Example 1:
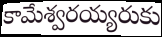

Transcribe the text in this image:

కామేశ్వరయ్యరుకు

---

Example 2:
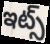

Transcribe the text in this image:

ఇట్స్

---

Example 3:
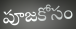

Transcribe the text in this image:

పూజకోసం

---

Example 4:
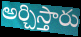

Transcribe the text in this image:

అర్చిస్తారు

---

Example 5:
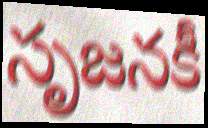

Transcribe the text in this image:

సృజనకీ